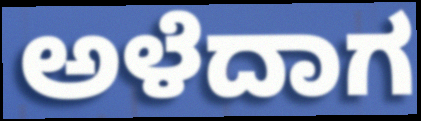
ಅಳೆದಾಗ